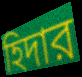
হিদার